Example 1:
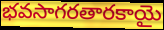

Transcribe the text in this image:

భవసాగరతారకాయై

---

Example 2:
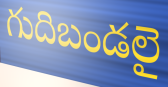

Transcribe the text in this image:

గుదిబండలై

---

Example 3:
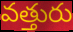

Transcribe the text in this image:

వత్తురు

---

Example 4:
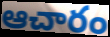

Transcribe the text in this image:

ఆచారం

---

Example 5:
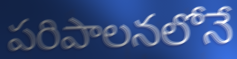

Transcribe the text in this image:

పరిపాలనలోనే